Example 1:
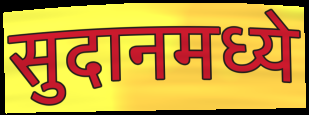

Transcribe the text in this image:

सुदानमध्ये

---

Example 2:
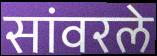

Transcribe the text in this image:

सांवरले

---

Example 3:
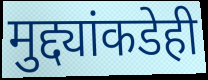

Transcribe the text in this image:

मुद्द्यांकडेही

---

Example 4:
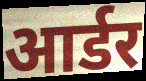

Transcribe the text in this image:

आर्डर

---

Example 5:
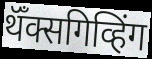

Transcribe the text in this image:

थॅँक्सगिव्हिंग